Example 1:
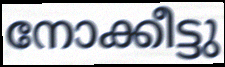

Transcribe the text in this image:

നോക്കീട്ടു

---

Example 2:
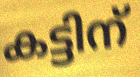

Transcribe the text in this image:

കട്ടിന്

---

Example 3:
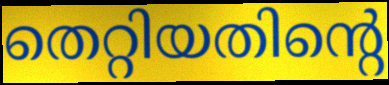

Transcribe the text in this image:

തെറ്റിയതിന്റെ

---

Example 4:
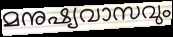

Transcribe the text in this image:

മനുഷ്യവാസവും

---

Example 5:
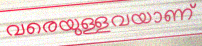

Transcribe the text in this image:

വരെയുള്ളവയാണ്